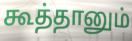
கூத்தானும்